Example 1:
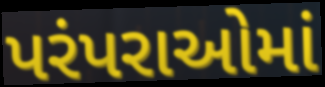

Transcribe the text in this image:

પરંપરાઓમાં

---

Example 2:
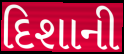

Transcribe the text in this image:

દિશાની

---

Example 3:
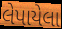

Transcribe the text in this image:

લેપાયેલા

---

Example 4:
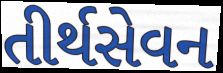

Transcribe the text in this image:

તીર્થસેવન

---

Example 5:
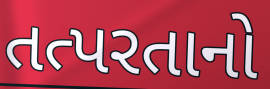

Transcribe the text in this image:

તત્પરતાનો